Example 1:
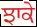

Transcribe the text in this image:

ਝਾਕੇ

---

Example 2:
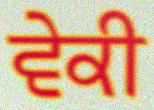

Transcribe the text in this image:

ਵੇਕੀ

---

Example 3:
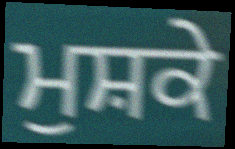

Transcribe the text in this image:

ਮੁਸ਼ਕੇ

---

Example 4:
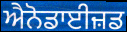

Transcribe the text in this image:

ਐਨੋਡਾਈਜ਼ਡ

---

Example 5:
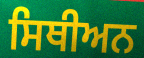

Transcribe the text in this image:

ਸਿਥੀਅਨ